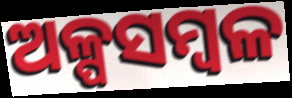
ଅଳ୍ପସମ୍ବଳ